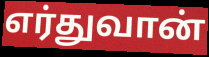
எர்துவான்